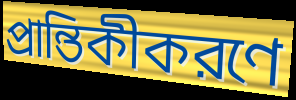
প্রান্তিকীকরণে